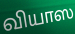
வியாஸ